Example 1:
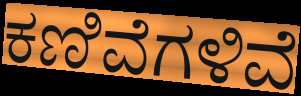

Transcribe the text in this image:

ಕಣಿವೆಗಳಿವೆ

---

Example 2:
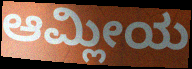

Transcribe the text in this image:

ಆಮ್ಲೀಯ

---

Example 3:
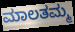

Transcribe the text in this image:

ಮಾಲತಮ್ಮ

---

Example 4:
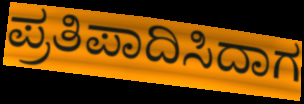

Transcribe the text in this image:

ಪ್ರತಿಪಾದಿಸಿದಾಗ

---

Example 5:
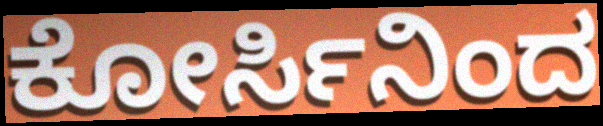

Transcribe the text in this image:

ಕೋರ್ಸಿನಿಂದ